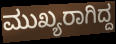
ಮುಖ್ಯರಾಗಿದ್ದ